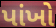
પાંખો